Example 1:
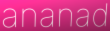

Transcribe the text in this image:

ananad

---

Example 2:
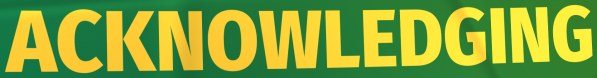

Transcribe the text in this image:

ACKNOWLEDGING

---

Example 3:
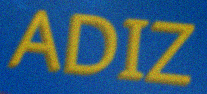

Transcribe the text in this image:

ADIZ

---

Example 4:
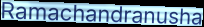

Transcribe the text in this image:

Ramachandranusha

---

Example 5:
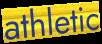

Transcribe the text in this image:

athletic